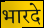
भारदे